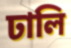
ঢালি